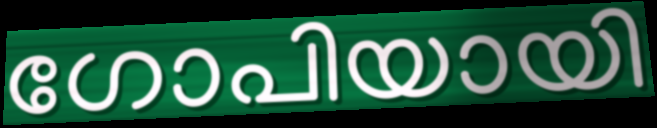
ഗോപിയായി